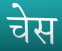
चेस